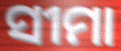
ସୀମା